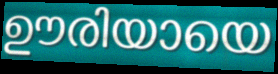
ഊരിയായെ